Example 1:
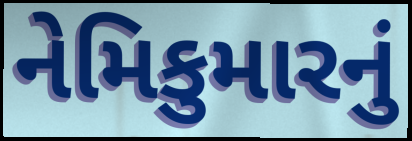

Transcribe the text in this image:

નેમિકુમારનું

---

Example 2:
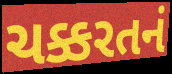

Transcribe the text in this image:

ચક્કરતનં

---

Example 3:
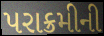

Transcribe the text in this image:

પરાક્રમીની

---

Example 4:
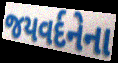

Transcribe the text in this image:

જયવર્દનેના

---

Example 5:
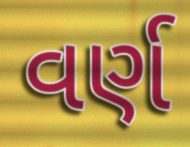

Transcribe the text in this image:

વર્ણ